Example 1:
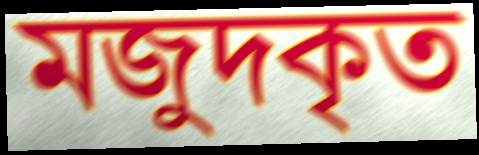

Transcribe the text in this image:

মজুদকৃত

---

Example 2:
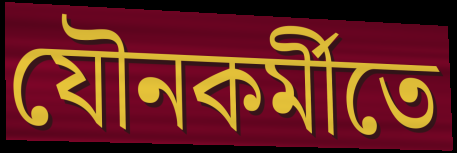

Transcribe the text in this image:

যৌনকর্মীতে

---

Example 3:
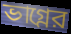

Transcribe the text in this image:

ভাগ্নের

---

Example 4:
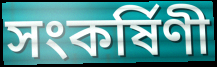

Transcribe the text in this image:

সংকর্ষিণী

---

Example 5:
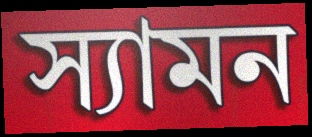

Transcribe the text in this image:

স্যামন